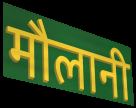
मौलानी